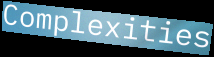
Complexities